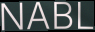
NABL